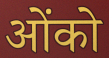
ओंको